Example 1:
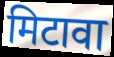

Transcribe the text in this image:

मिटावा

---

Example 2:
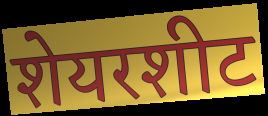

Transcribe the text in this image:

शेयरशीट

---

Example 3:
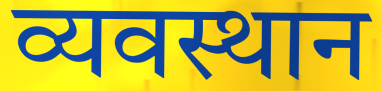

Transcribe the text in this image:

व्यवस्थान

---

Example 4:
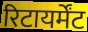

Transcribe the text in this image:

रिटायर्मेंट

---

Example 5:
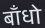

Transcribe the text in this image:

बाँधो